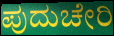
ಪುದುಚೇರಿ